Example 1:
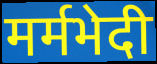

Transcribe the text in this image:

मर्मभेदी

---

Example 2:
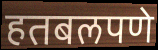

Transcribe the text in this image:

हतबलपणे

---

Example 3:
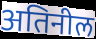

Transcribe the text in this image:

अतिनील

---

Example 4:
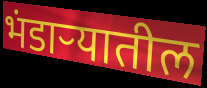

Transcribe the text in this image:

भंडाऱ्यातील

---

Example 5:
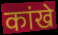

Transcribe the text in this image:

कांखे